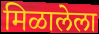
मिळालेला